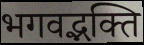
भगवद्भक्ति